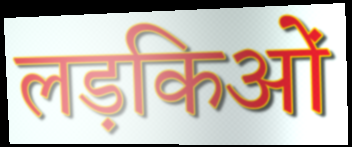
लड़किओं